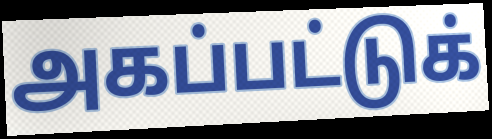
அகப்பட்டுக்